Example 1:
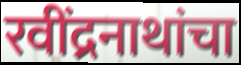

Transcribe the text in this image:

रवींद्रनाथांचा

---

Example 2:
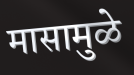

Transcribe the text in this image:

मासामुळे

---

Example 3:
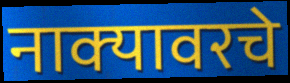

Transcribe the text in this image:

नाक्यावरचे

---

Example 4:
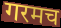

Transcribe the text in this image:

गरमच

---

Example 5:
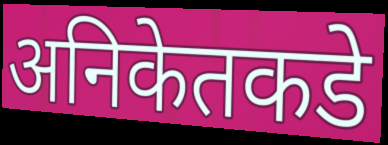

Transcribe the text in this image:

अनिकेतकडे